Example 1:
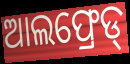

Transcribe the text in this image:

ଆଲଫ୍ରେଡ୍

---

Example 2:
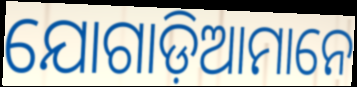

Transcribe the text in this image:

ଯୋଗାଡ଼ିଆମାନେ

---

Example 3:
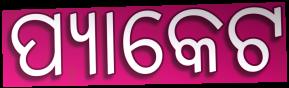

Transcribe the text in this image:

ପ୍ୟାକେଟ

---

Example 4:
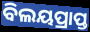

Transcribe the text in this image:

ବିଲୟପ୍ରାପ୍ତ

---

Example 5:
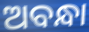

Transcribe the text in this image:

ଅବନ୍ଧା